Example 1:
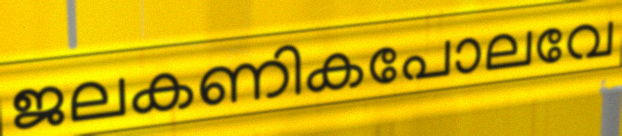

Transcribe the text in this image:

ജലകണികപോലവേ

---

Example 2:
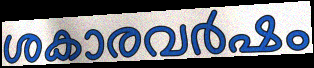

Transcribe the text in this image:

ശകാരവർഷം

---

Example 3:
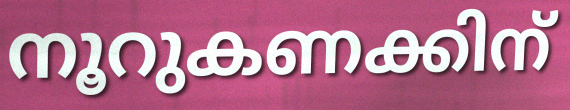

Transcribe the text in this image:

നൂറുകണക്കിന്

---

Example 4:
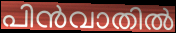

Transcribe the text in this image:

പിൻവാതിൽ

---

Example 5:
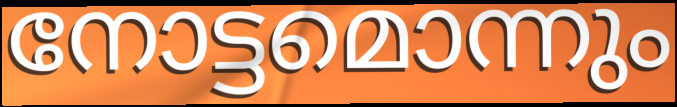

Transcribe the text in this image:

നോട്ടമൊന്നും